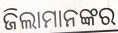
ଜିଲାମାନଙ୍କର